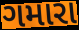
ગમારા